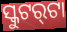
ସ୍କୁଟର୍‌ଟା